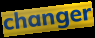
changer